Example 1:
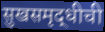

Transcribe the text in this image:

सुखसमृद्धीची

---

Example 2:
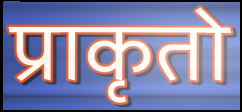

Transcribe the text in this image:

प्राकृतो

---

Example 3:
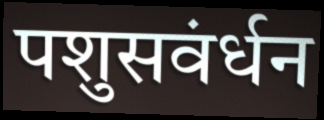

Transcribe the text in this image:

पशुसवंर्धन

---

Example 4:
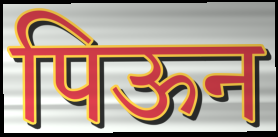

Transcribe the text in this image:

पिऊन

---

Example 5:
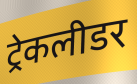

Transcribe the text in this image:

ट्रेकलीडर